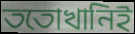
ততোখানিই